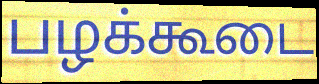
பழக்கூடை